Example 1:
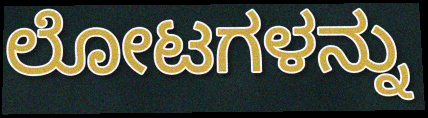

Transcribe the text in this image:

ಲೋಟಗಳನ್ನು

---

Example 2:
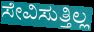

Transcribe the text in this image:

ಸೇವಿಸುತ್ತಿಲ್ಲ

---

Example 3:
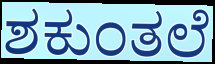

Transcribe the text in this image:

ಶಕುಂತಲೆ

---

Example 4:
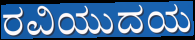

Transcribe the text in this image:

ರವಿಯುದಯ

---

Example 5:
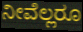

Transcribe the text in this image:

ನೀವೆಲ್ಲರೂ